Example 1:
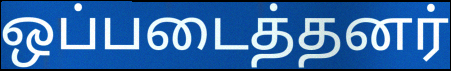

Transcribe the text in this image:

ஒப்படைத்தனர்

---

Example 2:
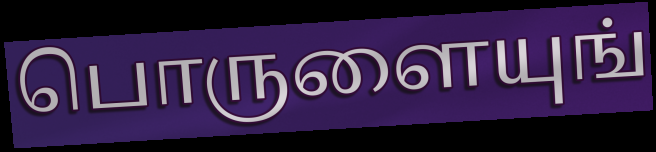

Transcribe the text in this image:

பொருளையுங்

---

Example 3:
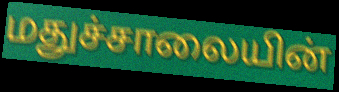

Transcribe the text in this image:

மதுச்சாலையின்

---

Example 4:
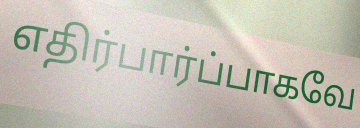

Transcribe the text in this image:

எதிர்பார்ப்பாகவே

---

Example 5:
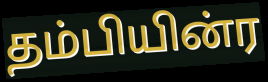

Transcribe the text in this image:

தம்பியின்ர